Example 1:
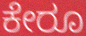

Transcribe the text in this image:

ಕೇರೂ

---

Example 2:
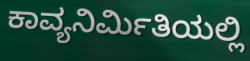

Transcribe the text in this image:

ಕಾವ್ಯನಿರ್ಮಿತಿಯಲ್ಲಿ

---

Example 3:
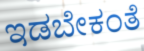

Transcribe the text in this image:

ಇಡಬೇಕಂತೆ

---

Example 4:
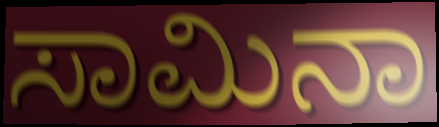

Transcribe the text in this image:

ಸಾಮಿನಾ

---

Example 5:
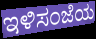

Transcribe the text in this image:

ಇಳಿಸಂಜೆಯ